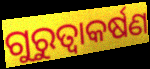
ଗୁରୁତ୍ଵାକର୍ଷଣ